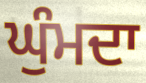
ਘੁੰਮਦਾ